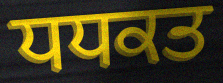
ਧਧਕਤ